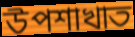
উপশাখাত